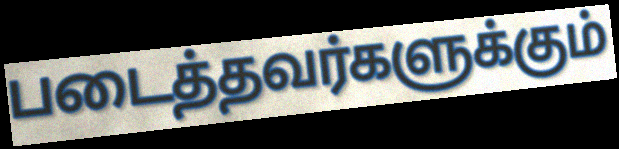
படைத்தவர்களுக்கும்